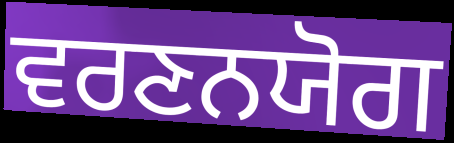
ਵਰਣਨਯੋਗ